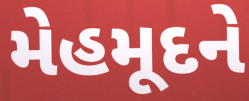
મેહમૂદને